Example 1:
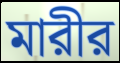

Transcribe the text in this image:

মারীর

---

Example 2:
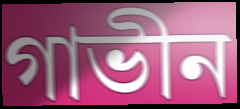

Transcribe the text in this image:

গাভীন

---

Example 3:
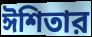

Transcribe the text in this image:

ঈশিতার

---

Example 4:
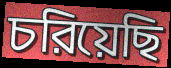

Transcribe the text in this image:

চরিয়েছি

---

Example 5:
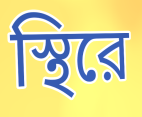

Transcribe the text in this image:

স্থিরে